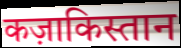
कज़ाकिस्तान